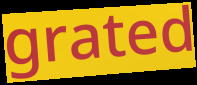
grated